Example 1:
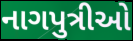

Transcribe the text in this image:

નાગપુત્રીઓ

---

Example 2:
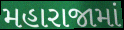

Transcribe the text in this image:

મહારાજામાં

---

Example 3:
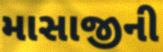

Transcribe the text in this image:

માસાજીની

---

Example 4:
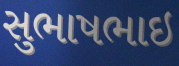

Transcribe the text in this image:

સુભાષભાઇ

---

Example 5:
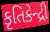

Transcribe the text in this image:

કૃતિકેન્દ્રી